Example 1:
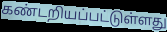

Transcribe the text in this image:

கண்டறியப்பட்டுள்ளது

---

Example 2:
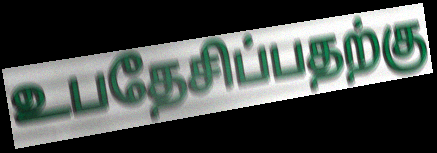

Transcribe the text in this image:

உபதேசிப்பதற்கு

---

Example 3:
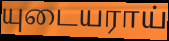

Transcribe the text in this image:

யுடையராய்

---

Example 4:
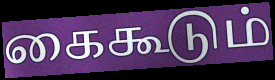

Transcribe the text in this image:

கைகூடும்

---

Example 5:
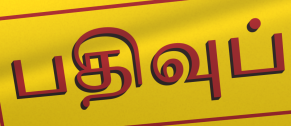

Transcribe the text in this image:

பதிவுப்